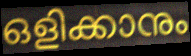
ഒളിക്കാനും